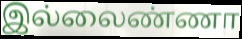
இல்லைண்ணா